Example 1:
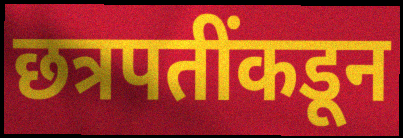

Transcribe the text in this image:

छत्रपतींकडून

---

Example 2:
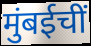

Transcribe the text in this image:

मुंबईचीं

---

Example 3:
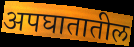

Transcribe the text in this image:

अपघातातील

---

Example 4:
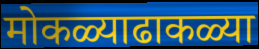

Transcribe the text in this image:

मोकळ्याढाकळ्या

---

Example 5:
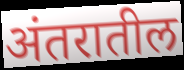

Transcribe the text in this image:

अंतरातील